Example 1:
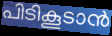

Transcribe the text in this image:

പിടികൂടാൻ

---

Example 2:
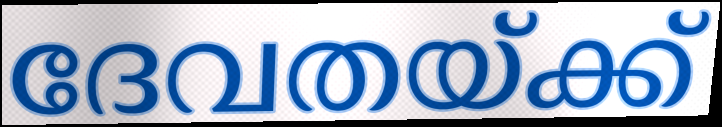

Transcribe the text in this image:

ദേവതയ്ക്ക്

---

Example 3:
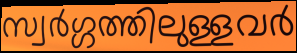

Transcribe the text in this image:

സ്വർഗ്ഗത്തിലുള്ളവർ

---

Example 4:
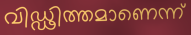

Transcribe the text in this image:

വിഡ്ഢിത്തമാണെന്ന്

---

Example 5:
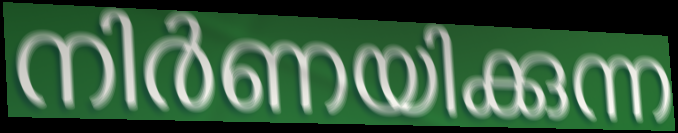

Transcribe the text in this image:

നിർണയിക്കുന്ന